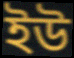
ইউ